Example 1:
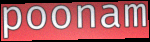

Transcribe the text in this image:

poonam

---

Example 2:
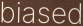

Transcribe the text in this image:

biased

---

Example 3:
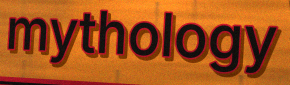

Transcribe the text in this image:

mythology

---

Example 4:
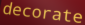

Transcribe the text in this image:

decorate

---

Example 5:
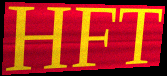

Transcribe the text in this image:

HFT